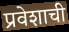
प्रवेशाची